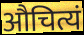
औचित्यं